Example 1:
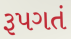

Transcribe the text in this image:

રૂપગતં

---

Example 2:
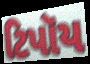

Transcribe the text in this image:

ટિપૉય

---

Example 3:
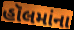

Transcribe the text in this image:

હૉલમાંના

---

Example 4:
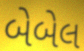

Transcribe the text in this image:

બેબેલ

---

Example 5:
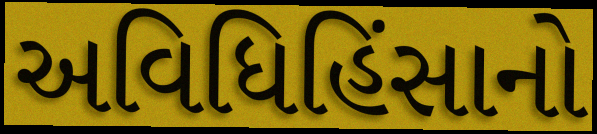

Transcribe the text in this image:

અવિધિહિંસાનો